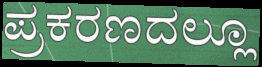
ಪ್ರಕರಣದಲ್ಲೂ